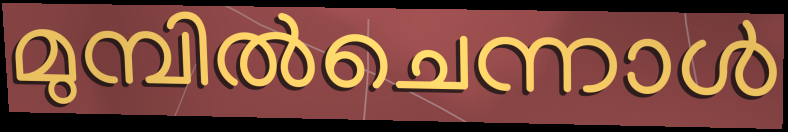
മുമ്പിൽചെന്നാൾ